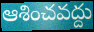
ఆశించవద్దు